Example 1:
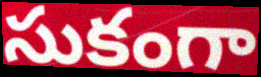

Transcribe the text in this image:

సుకంగా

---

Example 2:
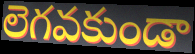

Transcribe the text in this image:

లెగవకుండా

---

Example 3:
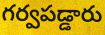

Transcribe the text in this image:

గర్వపడ్డారు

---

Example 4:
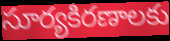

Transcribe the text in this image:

సూర్యకిరణాలకు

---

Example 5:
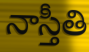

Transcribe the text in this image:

నాస్తీతి